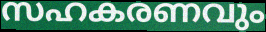
സഹകരണവും